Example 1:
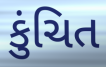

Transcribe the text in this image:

કુંચિત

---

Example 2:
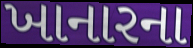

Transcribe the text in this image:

ખાનારના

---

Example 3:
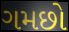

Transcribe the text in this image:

ગમછો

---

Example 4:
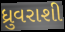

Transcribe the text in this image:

ધ્રુવરાશી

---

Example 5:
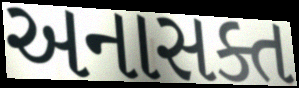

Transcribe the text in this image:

અનાસક્ત